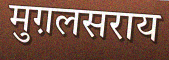
मुग़लसराय